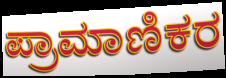
ಪ್ರಾಮಾಣಿಕರ